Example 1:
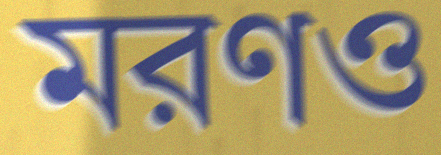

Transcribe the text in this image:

মরণও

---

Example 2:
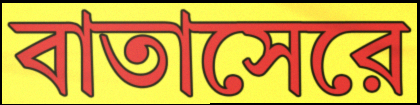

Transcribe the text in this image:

বাতাসেরে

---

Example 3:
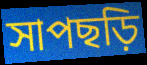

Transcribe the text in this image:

সাপছড়ি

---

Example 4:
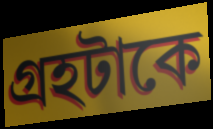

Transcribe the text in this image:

গ্রহটাকে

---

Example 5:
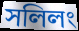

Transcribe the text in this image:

সলিলং